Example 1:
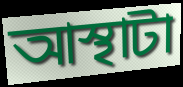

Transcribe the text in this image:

আস্থাটা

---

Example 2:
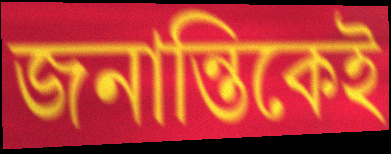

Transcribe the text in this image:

জনান্তিকেই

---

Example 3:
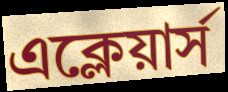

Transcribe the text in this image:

এক্লেয়ার্স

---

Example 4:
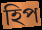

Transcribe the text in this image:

হিপ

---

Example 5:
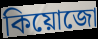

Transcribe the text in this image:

কিয়োজো